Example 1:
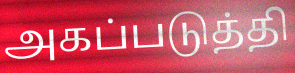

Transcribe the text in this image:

அகப்படுத்தி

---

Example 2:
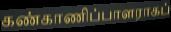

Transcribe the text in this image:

கண்காணிப்பாளராகப்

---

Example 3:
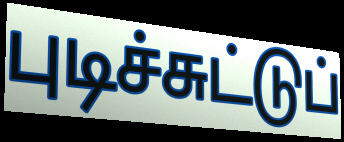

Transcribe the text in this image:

புடிச்சுட்டுப்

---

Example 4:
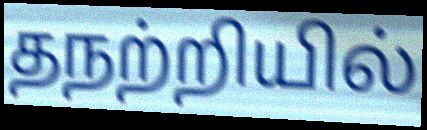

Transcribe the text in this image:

தநற்றியில்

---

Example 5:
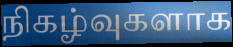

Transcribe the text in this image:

நிகழ்வுகளாக